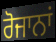
ਰੋਜਾਨਾਂ